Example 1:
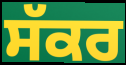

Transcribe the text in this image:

ਸੱਕਰ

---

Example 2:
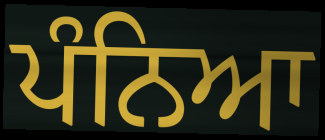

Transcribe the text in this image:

ਪੰਨਿਆ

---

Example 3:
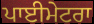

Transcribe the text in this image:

ਪਾਈਮੇਟਰਾ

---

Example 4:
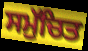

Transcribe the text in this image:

ਸਮੁੱਚਿਤ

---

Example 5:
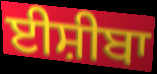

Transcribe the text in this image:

ਈਸ਼ੀਬਾ